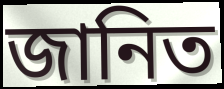
জানিত